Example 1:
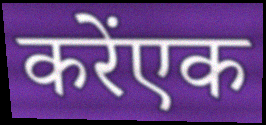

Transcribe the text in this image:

करेंएक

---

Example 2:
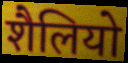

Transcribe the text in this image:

शैलियो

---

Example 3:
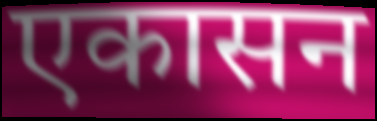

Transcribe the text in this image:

एकासन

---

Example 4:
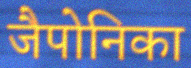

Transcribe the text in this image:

जैपोनिका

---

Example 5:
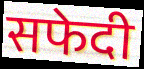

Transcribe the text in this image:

सफेदी